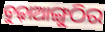
ବୁଢ଼ାଆଙ୍ଗୁଠିର